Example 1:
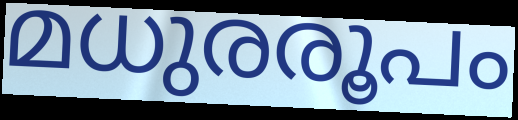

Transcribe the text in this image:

മധുരരൂപം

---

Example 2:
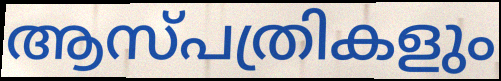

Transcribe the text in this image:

ആസ്പത്രികളും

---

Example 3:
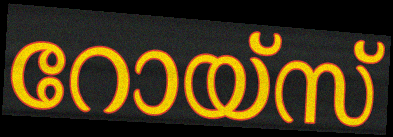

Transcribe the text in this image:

റോയ്സ്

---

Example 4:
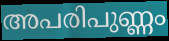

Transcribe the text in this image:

അപരിപുണ്ണം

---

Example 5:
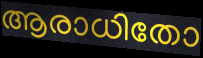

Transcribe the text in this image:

ആരാധിതോ